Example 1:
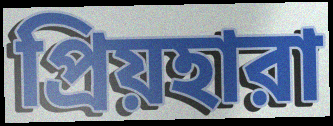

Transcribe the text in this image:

প্রিয়হারা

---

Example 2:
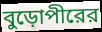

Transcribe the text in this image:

বুড়োপীরের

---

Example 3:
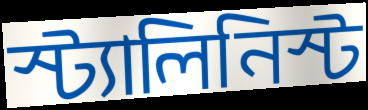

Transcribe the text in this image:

স্ট্যালিনিস্ট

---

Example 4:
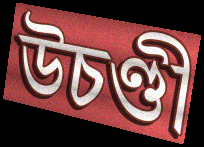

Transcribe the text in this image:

উচণ্ডী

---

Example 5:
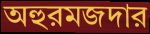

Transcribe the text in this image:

অহুরমজদার